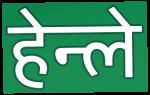
हेन्ले